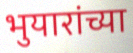
भुयारांच्या